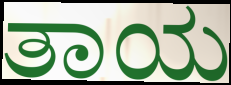
ತಾಯ